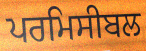
ਪਰਮਿਸੀਬਲ